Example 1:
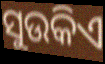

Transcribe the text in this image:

ସୁଉକିଏ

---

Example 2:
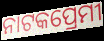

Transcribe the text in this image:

ନାଟକପ୍ରେମୀ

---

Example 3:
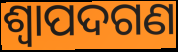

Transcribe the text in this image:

ଶ୍ୱାପଦଗଣ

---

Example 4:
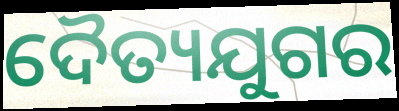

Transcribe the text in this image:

ଦୈତ୍ୟଯୁଗର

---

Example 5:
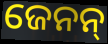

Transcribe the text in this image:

ଜେନନ୍